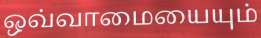
ஒவ்வாமையையும்